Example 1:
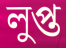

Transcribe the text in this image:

লুপ্ত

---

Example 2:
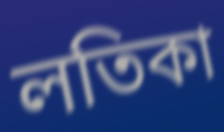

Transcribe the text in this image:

লতিকা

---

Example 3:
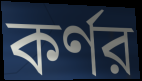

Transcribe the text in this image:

কর্ণর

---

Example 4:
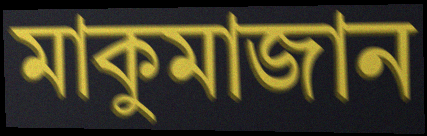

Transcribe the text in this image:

মাকুমাজান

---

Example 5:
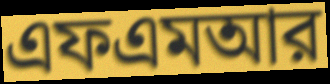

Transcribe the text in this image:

এফএমআর